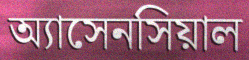
অ্যাসেনসিয়াল